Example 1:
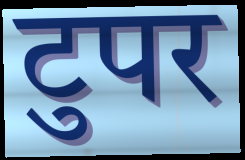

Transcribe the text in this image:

टुपर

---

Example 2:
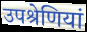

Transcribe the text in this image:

उपश्रेणियां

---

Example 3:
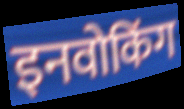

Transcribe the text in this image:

इनवोकिंग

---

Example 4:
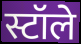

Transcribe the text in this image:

स्टॉले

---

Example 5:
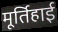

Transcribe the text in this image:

मूर्तिहाई